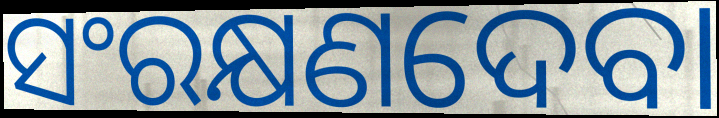
ସଂରକ୍ଷଣଦେବା